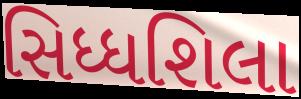
સિધ્ધશિલા